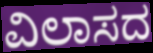
ವಿಲಾಸದ